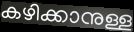
കഴിക്കാനുള്ള